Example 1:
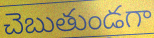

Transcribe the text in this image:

చెబుతుండగా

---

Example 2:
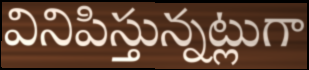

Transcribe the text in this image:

వినిపిస్తున్నట్లుగా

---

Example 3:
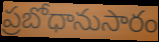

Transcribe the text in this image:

ప్రబోధానుసారం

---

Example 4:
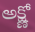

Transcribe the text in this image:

అక్ష్ణో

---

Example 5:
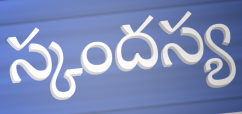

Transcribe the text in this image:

స్కందస్య